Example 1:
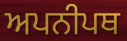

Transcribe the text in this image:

ਅਪਨੀਪਥ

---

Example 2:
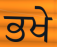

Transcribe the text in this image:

ਭਖੇ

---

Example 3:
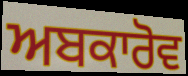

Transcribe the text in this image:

ਅਬਕਾਰੋਵ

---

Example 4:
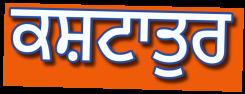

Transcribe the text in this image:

ਕਸ਼ਟਾਤੁਰ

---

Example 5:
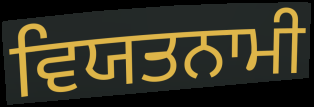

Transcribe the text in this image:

ਵਿਯਤਨਾਮੀ